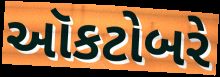
ઑકટોબરે